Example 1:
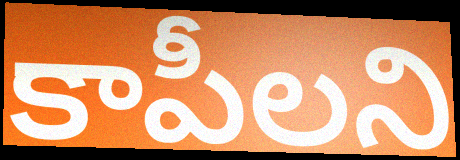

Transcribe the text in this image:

కాపీలని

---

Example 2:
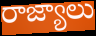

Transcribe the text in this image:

రాజ్యాలు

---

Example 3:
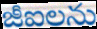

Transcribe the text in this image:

జీఐలను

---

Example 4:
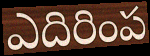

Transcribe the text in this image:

ఎదిరింప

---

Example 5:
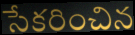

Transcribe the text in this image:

సేకరించిన